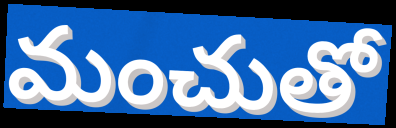
మంచుతో